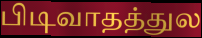
பிடிவாதத்துல